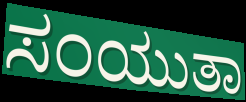
ಸಂಯುತಾ